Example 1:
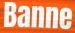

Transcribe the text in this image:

Banne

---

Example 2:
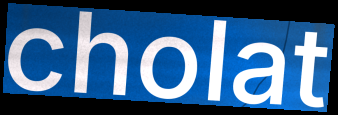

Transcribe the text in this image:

cholat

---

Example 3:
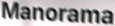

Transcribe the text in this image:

Manorama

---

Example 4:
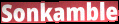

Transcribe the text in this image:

Sonkamble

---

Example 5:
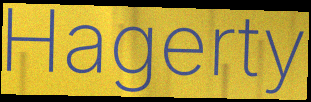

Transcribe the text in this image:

Hagerty